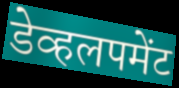
डेव्हलपमेंट